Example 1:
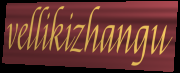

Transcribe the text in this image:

vellikizhangu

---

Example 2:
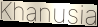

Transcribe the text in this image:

Khanusia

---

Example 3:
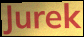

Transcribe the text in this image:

Jurek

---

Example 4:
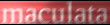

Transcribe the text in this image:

maculata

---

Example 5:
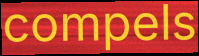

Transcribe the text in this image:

compels